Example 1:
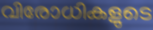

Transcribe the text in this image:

വിരോധികളുടെ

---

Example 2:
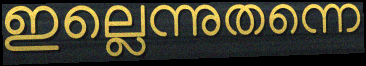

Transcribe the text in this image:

ഇല്ലെന്നുതന്നെ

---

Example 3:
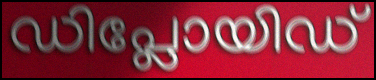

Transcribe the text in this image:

ഡിപ്ലോയിഡ്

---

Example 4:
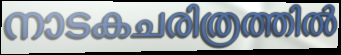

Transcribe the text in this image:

നാടകചരിത്രത്തിൽ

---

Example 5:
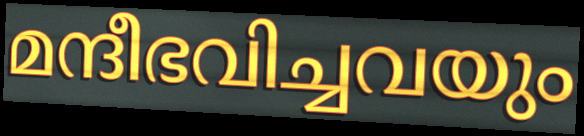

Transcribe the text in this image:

മന്ദീഭവിച്ചവയും